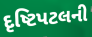
દૃષ્ટિપટલની